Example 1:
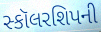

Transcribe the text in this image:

સ્કૉલરશિપની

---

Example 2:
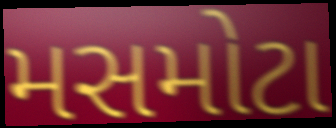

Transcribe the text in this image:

મસમોટા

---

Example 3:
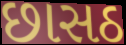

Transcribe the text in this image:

છાસઠ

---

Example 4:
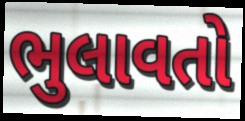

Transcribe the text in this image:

ભુલાવતો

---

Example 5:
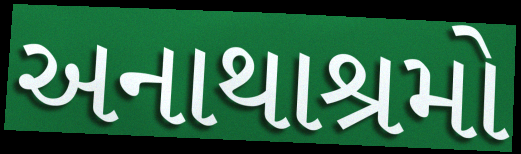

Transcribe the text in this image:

અનાથાશ્રમો